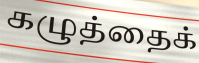
கழுத்தைக்